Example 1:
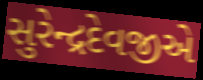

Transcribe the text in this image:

સુરેન્દ્રદેવજીએ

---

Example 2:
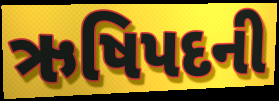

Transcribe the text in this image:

ઋષિપદની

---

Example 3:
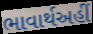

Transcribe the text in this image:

ભાવાર્થઅહીં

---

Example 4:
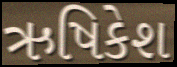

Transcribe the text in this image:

ઋષિકેશ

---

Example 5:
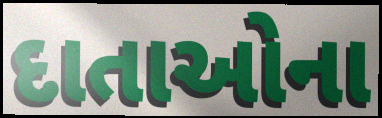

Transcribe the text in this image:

દાતાઓના